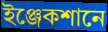
ইঞ্জেকশানে